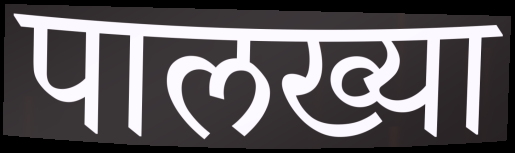
पालख्या